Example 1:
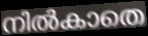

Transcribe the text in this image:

നിൽകാതെ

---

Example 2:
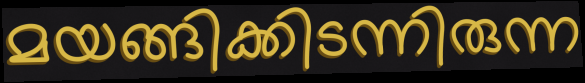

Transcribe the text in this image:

മയങ്ങിക്കിടന്നിരുന്ന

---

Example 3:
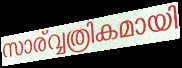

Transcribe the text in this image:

സാര്വ്വത്രികമായി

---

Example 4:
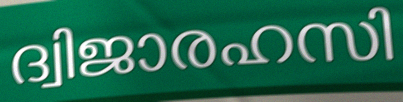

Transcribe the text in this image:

ദ്വിജാരഹസി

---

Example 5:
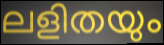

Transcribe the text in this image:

ലളിതയും